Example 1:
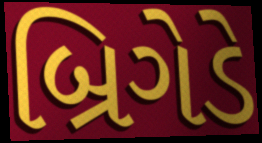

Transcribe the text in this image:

બ્રિગેડે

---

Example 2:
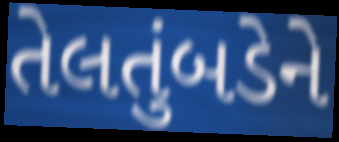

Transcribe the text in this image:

તેલતુંબડેને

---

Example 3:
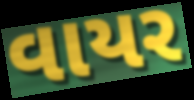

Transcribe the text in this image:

વાયર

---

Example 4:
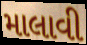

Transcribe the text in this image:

માલાવી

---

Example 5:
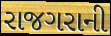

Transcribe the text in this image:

રાજગરાની